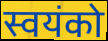
स्वयंको